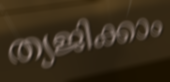
ത്യജിക്കാം